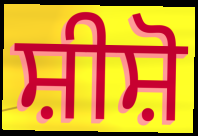
ਸ਼ੀਸ਼ੋ